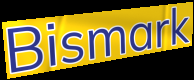
Bismark